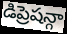
డిప్రెషన్గా